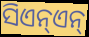
ସିଏନ୍ଏନ୍